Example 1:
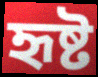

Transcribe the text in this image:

হৃষ্ট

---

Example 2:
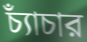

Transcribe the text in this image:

চ্যাঁচার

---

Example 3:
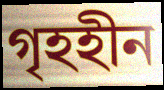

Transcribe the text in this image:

গৃহহীন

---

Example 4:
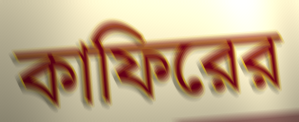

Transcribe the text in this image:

কাফিরের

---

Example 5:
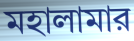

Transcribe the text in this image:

মহালামার